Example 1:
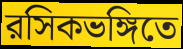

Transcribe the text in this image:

রসিকভঙ্গিতে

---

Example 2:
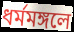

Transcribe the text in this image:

ধর্মমঙ্গলে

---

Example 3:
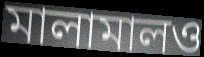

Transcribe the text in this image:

মালামালও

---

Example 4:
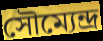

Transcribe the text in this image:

সৌম্যেন্দ্র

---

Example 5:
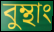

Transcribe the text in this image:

বুম্থাং